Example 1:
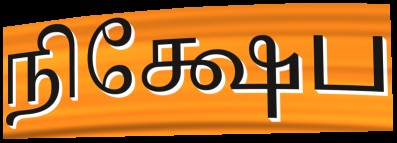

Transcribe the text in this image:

நிக்ஷேப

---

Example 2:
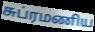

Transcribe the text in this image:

சுப்ரமணிய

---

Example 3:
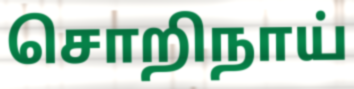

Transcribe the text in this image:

சொறிநாய்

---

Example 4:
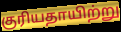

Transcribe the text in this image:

குரியதாயிற்று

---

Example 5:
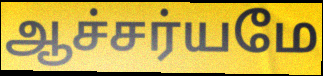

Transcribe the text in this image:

ஆச்சர்யமே